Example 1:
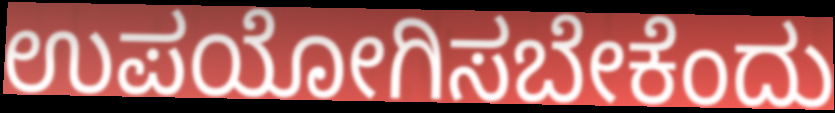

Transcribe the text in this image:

ಉಪಯೋಗಿಸಬೇಕೆಂದು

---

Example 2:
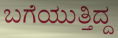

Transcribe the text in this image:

ಬಗೆಯುತ್ತಿದ್ದ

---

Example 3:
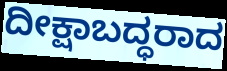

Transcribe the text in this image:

ದೀಕ್ಷಾಬದ್ಧರಾದ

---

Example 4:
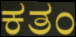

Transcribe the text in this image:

ಕತಂ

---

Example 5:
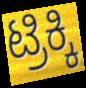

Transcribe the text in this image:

ಟ್ರಿಕ್ಕಿ